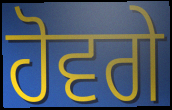
ਹੋਵਗੇ